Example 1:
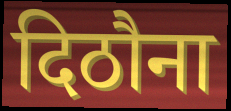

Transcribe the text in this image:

दिठौना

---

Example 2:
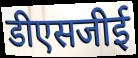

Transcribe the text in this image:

डीएसजीई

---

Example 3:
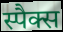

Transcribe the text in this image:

स्पैक्स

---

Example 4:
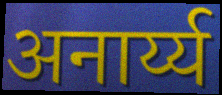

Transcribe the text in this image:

अनार्य्य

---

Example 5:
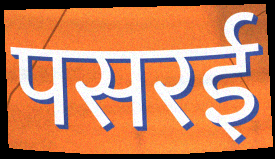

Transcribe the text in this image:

पसरई